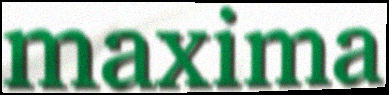
maxima